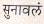
सुनावलं